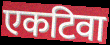
एकटिवा